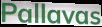
Pallavas